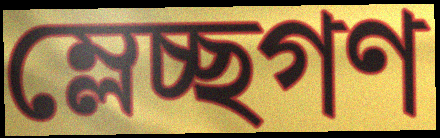
ম্লেচ্ছগণ